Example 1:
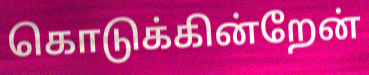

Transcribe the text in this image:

கொடுக்கின்றேன்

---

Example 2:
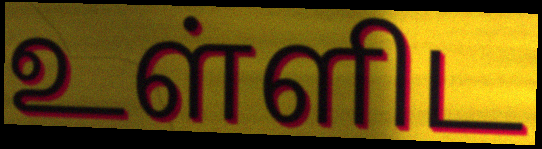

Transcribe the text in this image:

உள்ளிட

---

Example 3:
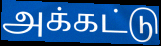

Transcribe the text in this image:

அக்கட்டு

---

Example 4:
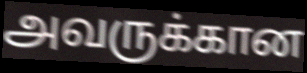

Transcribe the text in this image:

அவருக்கான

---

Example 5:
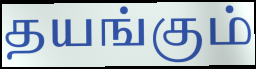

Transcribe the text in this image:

தயங்கும்